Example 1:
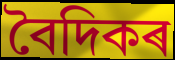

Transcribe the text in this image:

বৈদিকৰ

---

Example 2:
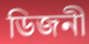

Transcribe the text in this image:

ডিজনী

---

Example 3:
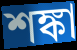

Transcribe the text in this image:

শঙ্কা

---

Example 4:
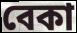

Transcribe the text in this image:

বেকা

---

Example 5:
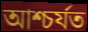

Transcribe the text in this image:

আশ্চৰ্যত